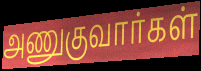
அணுகுவார்கள்